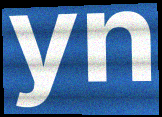
yn